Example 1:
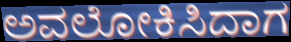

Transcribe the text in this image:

ಅವಲೋಕಿಸಿದಾಗ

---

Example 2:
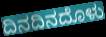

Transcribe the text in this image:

ದಿನದಿನದೊಳು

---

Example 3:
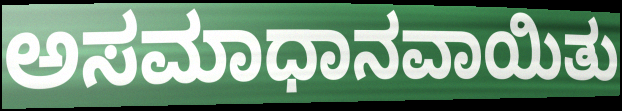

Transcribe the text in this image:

ಅಸಮಾಧಾನವಾಯಿತು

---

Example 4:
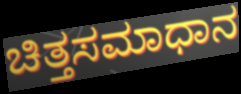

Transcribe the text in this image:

ಚಿತ್ತಸಮಾಧಾನ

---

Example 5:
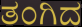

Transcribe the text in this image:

ತಂಗಿದ